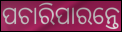
ପଚାରିପାରନ୍ତେ